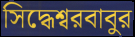
সিদ্ধেশ্বরবাবুর